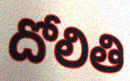
దోలితి